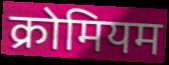
क्रोमियम